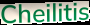
Cheilitis